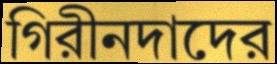
গিরীনদাদের